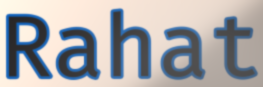
Rahat